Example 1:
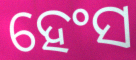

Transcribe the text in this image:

ହେଂସ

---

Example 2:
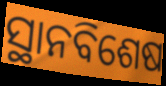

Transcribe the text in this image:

ସ୍ଥାନବିଶେଷ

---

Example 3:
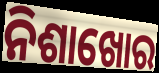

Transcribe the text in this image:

ନିଶାଖୋର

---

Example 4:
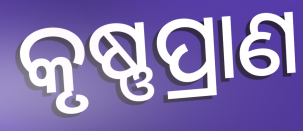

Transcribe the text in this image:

କୃଷ୍ଣପ୍ରାଣ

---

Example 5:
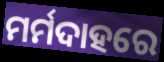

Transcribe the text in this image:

ମର୍ମଦାହରେ